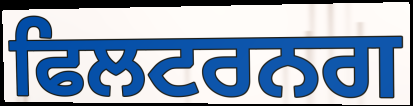
ਫਿਲਟਰਨਗ